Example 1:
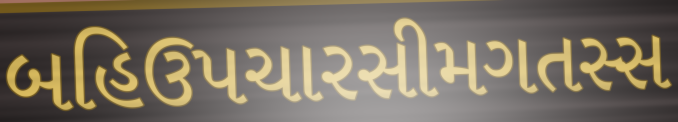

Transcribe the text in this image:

બહિઉપચારસીમગતસ્સ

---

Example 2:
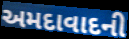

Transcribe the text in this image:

અમદાવાદની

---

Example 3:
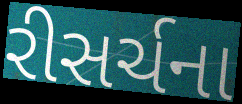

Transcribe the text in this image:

રીસર્ચના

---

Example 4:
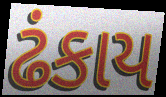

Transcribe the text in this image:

ઢંકાય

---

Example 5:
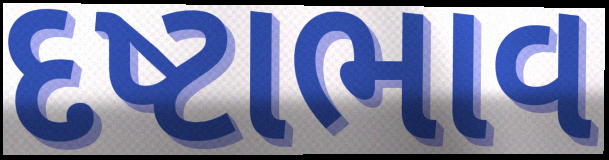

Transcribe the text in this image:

દષ્ટાભાવ